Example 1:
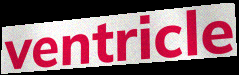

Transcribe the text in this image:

ventricle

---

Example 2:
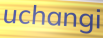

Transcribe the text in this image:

uchangi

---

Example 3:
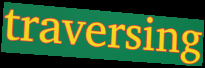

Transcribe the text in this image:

traversing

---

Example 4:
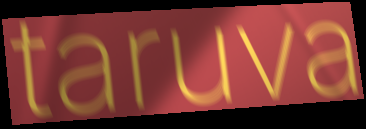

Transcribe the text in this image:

taruva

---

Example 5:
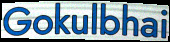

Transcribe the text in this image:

Gokulbhai